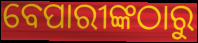
ବେପାରୀଙ୍କଠାରୁ